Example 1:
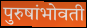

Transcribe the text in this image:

पुरुषांभोवती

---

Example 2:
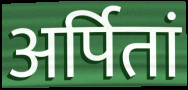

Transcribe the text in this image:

अर्पितां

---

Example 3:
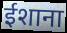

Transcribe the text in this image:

ईशाना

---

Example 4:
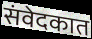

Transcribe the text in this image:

संवेदकात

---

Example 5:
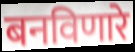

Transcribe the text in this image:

बनविणारे